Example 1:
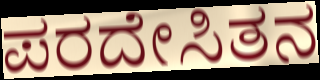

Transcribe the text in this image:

ಪರದೇಸಿತನ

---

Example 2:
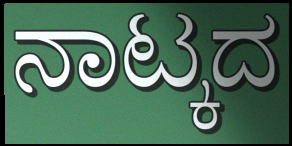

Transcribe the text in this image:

ನಾಟ್ಕದ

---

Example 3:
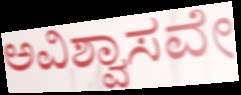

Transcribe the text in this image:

ಅವಿಶ್ವಾಸವೇ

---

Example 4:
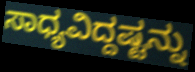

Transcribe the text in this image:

ಸಾಧ್ಯವಿದ್ದಷ್ಟನ್ನು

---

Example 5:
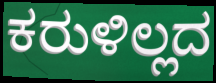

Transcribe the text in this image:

ಕರುಳಿಲ್ಲದ